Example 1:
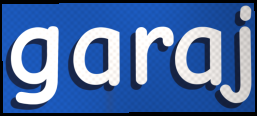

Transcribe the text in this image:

garaj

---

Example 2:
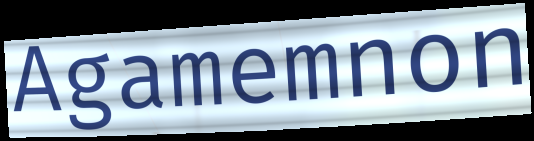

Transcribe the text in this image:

Agamemnon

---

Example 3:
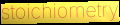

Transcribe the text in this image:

stoichiometry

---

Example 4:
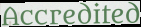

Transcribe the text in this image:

Accredited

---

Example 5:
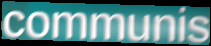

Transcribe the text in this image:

communis